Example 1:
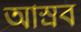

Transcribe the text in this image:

আস্রব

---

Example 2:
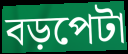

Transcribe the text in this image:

বড়পেটা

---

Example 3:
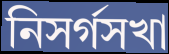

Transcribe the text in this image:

নিসর্গসখা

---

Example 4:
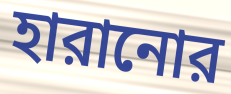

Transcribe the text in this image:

হারানোর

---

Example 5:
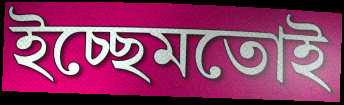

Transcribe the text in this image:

ইচ্ছেমতোই